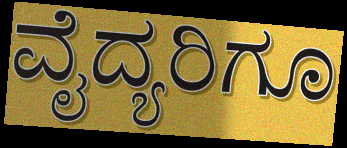
ವೈದ್ಯರಿಗೂ